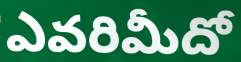
ఎవరిమీదో